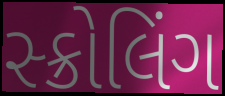
સ્ક્રોલિંગ